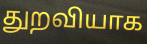
துறவியாக